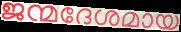
ജന്മദേശമായ